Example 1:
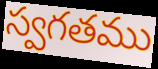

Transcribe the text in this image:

స్వగతము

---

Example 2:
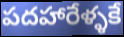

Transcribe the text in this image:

పదహారేళ్ళకే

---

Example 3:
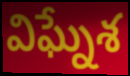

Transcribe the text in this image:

విఘ్నేశ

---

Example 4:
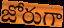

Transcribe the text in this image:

జోరుగా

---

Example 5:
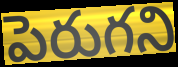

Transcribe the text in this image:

పెరుగని